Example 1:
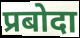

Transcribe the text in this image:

प्रबोदा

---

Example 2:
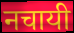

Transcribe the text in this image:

नचायी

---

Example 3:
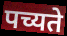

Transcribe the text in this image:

पच्यते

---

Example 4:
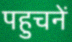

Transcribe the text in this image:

पहुचनें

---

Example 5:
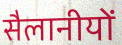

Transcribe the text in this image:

सैलानीयों